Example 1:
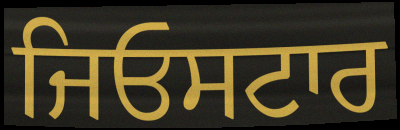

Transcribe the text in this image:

ਜਿਓਸਟਾਰ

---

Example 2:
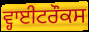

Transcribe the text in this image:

ਵ੍ਹਾਈਟਰੌਕਸ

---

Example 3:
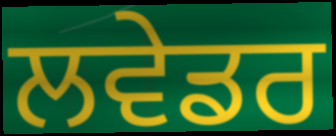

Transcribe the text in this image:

ਲਵੇਡਰ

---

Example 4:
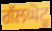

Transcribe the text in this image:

ਗੱਲਘੋਟੂ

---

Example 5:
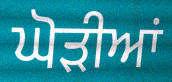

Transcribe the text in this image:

ਘੋੜੀਆਂ